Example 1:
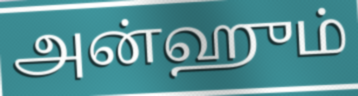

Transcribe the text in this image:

அன்ஹும்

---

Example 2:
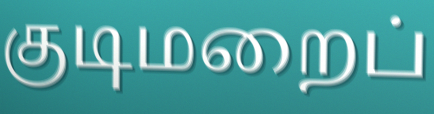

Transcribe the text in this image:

குடிமறைப்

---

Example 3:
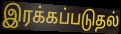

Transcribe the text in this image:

இரக்கப்படுதல்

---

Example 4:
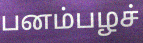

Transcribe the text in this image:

பனம்பழச்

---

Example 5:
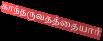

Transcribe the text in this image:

காந்தருவதத்தையார்